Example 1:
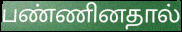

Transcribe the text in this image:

பண்ணினதால்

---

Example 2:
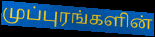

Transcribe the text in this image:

முப்புரங்களின்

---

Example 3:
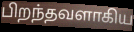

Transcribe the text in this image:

பிறந்தவளாகிய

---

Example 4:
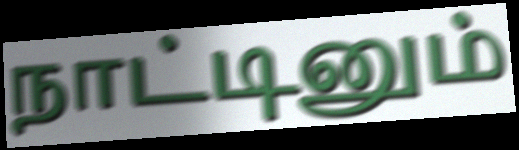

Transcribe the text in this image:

நாட்டினும்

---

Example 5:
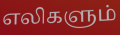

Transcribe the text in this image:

எலிகளும்